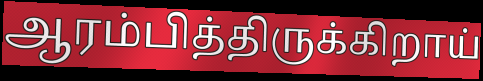
ஆரம்பித்திருக்கிறாய்